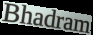
Bhadram